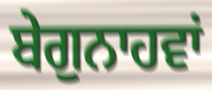
ਬੇਗੁਨਾਹਵਾਂ